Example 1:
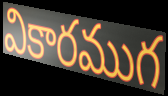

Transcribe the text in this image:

వికారముగ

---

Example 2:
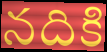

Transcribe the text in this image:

నదికి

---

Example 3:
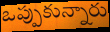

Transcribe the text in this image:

ఒప్పుకున్నారు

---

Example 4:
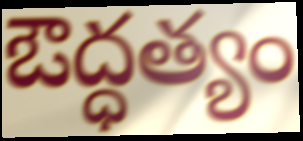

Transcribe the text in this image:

ఔద్ధత్యం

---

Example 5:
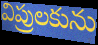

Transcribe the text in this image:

విప్రులకును